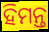
ହିମନ୍ତ